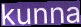
kunna